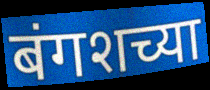
बंगशच्या